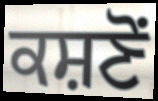
ਕਸ਼ਣੋਂ